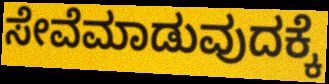
ಸೇವೆಮಾಡುವುದಕ್ಕೆ